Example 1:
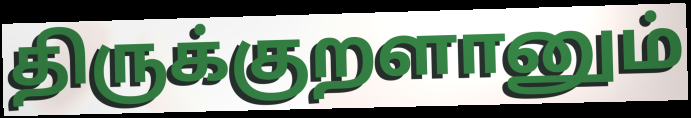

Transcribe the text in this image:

திருக்குறளானும்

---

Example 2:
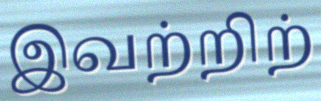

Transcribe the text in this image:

இவற்றிற்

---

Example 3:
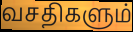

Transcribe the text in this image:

வசதிகளும்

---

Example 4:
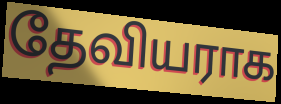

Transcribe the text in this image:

தேவியராக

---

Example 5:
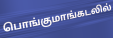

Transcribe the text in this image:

பொங்குமாங்கடலில்